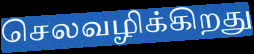
செலவழிக்கிறது